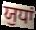
ਯੁਧਾਂ